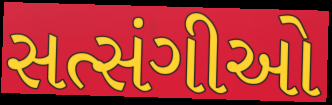
સત્સંગીઓ